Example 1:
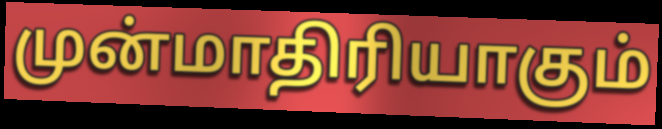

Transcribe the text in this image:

முன்மாதிரியாகும்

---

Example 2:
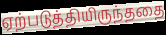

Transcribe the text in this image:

ஏற்படுத்தியிருந்ததை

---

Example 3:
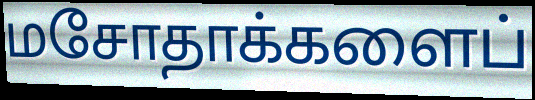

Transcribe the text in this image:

மசோதாக்களைப்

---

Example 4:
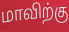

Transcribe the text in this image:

மாவிற்கு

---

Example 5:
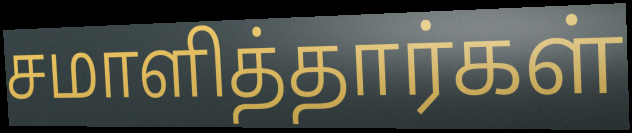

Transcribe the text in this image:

சமாளித்தார்கள்